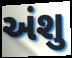
અંશુ